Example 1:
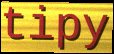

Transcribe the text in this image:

tipy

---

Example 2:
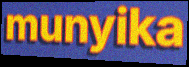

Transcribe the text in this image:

munyika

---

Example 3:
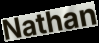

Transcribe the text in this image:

Nathan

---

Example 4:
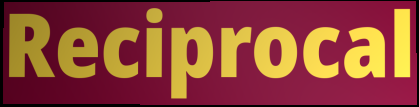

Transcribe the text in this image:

Reciprocal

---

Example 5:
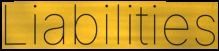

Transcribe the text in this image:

Liabilities